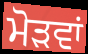
ਮੋੜਵਾਂ